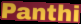
Panthi